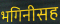
भगिनीसह